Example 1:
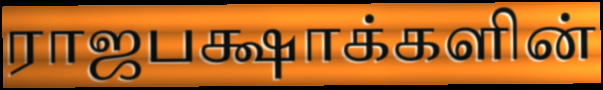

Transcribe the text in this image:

ராஜபக்ஷாக்களின்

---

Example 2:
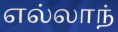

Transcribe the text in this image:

எல்லாந்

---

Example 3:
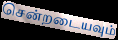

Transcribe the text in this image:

சென்றடையவும்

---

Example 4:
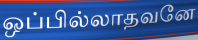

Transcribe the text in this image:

ஒப்பில்லாதவனே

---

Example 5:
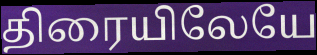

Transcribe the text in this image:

திரையிலேயே